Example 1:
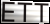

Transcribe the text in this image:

ETT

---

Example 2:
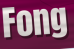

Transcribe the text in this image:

Fong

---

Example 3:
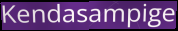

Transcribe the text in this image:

Kendasampige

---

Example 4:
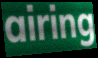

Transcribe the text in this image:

airing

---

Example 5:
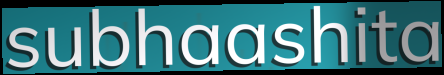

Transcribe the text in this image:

subhaashita